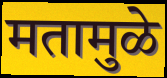
मतामुळे